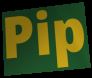
Pip